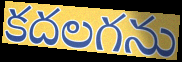
కదలగను